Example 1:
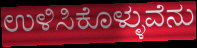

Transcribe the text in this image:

ಉಳಿಸಿಕೊಳ್ಳುವೆನು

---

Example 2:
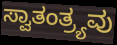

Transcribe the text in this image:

ಸ್ವಾತಂತ್ರ್ಯವು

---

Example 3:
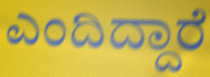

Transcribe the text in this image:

ಎಂದಿದ್ದಾರೆ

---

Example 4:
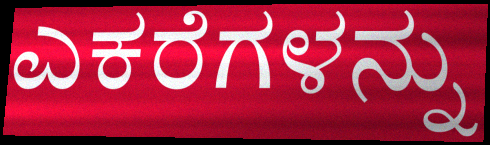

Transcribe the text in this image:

ಎಕರೆಗಳನ್ನು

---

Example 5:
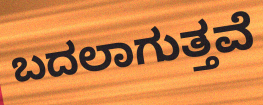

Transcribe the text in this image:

ಬದಲಾಗುತ್ತವೆ